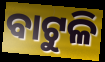
ବାଟୁଳି